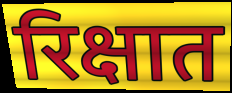
रिक्षात